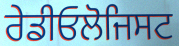
ਰੇਡੀਓਲੋਜਿਸਟ